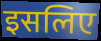
इसलिए